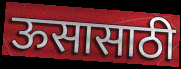
ऊसासाठी